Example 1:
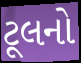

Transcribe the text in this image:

ટૂલનો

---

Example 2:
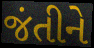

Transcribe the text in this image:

જંતીને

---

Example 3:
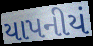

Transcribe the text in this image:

યાપનીયં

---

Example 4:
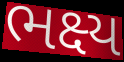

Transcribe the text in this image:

ભક્ષ્ય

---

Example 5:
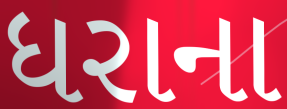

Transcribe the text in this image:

ધરાના